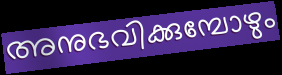
അനുഭവിക്കുമ്പോഴും